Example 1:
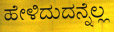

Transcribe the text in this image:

ಹೇಳಿದುದನ್ನೆಲ್ಲ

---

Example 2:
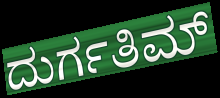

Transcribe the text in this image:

ದುರ್ಗತಿಮ್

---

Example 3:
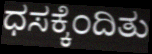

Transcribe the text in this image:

ಧಸಕ್ಕೆಂದಿತು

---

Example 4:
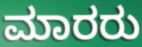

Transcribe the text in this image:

ಮಾರರು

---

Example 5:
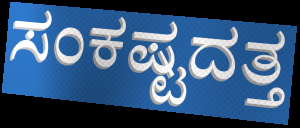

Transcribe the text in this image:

ಸಂಕಷ್ಟದತ್ತ